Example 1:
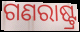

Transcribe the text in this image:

ଗଣରାଷ୍ଟ୍ର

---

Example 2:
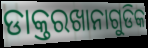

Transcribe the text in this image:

ଡାକ୍ତରଖାନାଗୁଡିକ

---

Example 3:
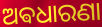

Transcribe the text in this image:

ଅଵଧାରଣା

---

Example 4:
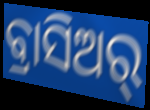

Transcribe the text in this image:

ବ୍ରାସିଅର୍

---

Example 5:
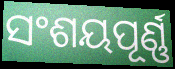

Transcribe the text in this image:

ସଂଶୟପୂର୍ଣ୍ଣ